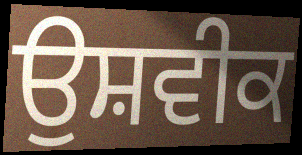
ਉਸ਼ਵੀਕ